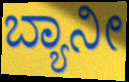
ಬ್ಯಾನೀ